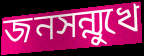
জনসন্মুখে